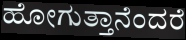
ಹೋಗುತ್ತಾನೆಂದರೆ